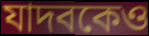
যাদবকেও